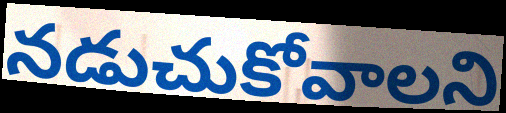
నడుచుకోవాలని